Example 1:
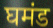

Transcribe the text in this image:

घमंड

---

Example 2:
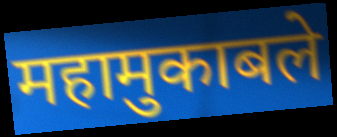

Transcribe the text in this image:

महामुकाबले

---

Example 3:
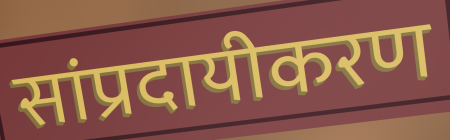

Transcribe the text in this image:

सांप्रदायीकरण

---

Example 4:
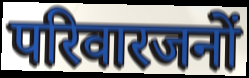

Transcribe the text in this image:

परिवारजनों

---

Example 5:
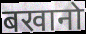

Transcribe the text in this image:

बखानो